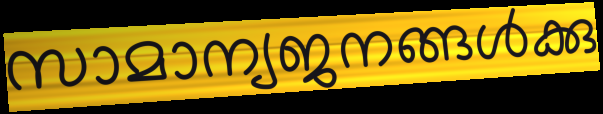
സാമാന്യജനങ്ങൾക്കു